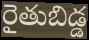
రైతుబిడ్డ